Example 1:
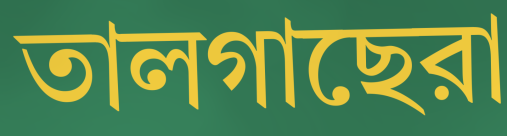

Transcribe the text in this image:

তালগাছেরা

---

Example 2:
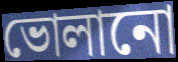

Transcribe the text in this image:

ভোলানো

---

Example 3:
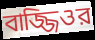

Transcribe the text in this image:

বাজ্জিওর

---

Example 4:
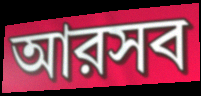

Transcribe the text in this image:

আরসব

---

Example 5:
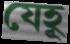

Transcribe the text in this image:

যেহূ